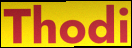
Thodi